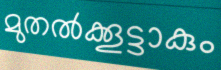
മുതൽക്കൂട്ടാകും